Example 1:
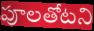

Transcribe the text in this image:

పూలతోటని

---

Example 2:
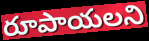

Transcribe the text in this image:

రూపాయలని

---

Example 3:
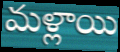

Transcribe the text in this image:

మళ్లాయి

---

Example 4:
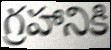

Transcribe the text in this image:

గ్రహానికి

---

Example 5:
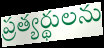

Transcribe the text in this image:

ప్రత్యర్థులను